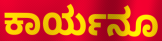
ಕಾರ್ಯನೂ